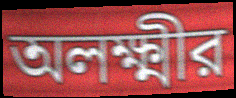
অলক্ষ্মীর